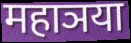
महाञया